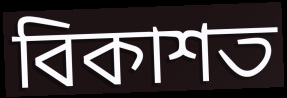
বিকাশত